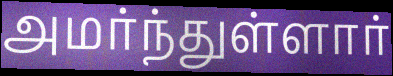
அமர்ந்துள்ளார்